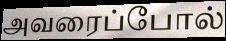
அவரைப்போல்